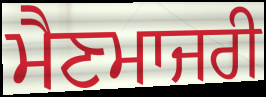
ਮੈਣਮਾਜਰੀ